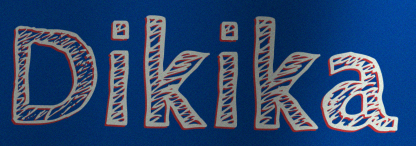
Dikika